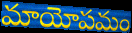
మాయోపమం